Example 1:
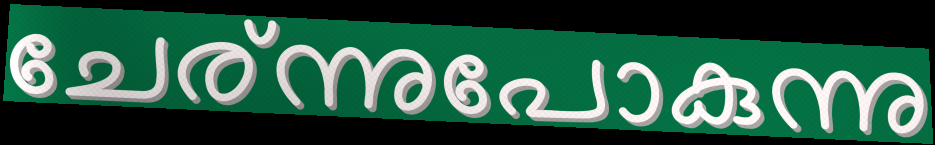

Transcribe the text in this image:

ചേര്ന്നുപോകുന്നു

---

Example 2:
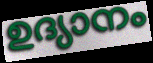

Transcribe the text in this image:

ഉദ്യാനം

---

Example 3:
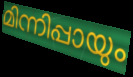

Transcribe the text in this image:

മിന്നിപ്പായും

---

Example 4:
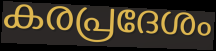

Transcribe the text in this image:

കരപ്രദേശം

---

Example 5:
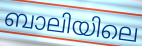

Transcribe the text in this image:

ബാലിയിലെ